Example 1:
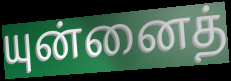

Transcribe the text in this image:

யுன்னைத்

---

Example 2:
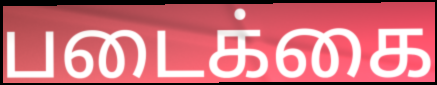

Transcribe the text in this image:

படைக்கை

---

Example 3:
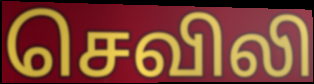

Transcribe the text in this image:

செவிலி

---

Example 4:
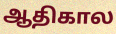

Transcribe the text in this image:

ஆதிகால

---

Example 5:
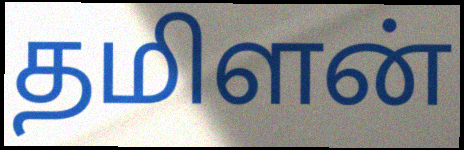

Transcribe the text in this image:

தமிளன்